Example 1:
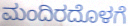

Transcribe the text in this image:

ಮಂದಿರದೊಳಗೆ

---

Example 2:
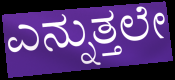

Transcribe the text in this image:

ಎನ್ನುತ್ತಲೇ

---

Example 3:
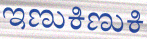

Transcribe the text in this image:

ಇಣುಕಿಣುಕಿ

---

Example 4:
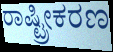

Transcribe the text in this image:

ರಾಷ್ಟ್ರೀಕರಣ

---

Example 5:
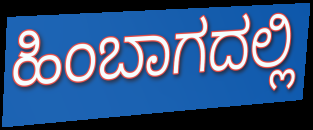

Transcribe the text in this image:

ಹಿಂಬಾಗದಲ್ಲಿ